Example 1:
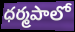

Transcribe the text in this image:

ధర్మపాలో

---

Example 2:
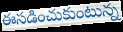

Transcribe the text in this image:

ఈసడించుకుంటున్న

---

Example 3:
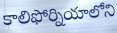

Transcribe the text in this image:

కాలిఫోర్నియాలోని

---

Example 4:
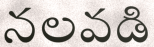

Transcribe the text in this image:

నలవడి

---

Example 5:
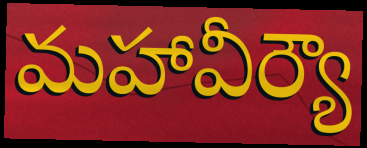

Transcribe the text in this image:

మహావీర్యౌ